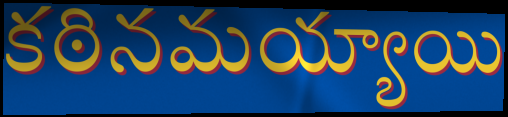
కఠినమయ్యాయి